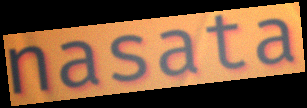
nasata